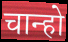
चान्हो